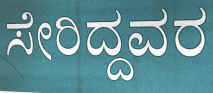
ಸೇರಿದ್ದವರ